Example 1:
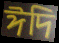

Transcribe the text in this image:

ঈদি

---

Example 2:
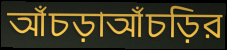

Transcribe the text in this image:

আঁচড়াআঁচড়ির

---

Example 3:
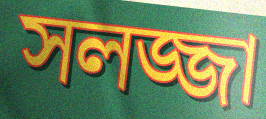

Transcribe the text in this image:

সলজ্জা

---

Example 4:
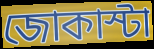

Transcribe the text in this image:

জোকাস্টা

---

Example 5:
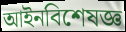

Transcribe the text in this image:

আইনবিশেষজ্ঞ